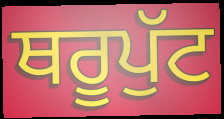
ਥਰੂਪੁੱਟ